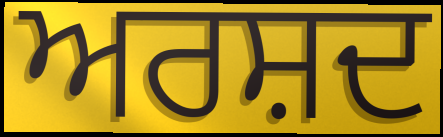
ਅਰਸ਼ਦ